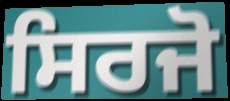
ਸਿਰਜੋ